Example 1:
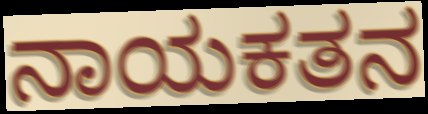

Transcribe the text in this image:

ನಾಯಕತನ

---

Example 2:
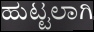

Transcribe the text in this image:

ಹುಟ್ಟಲಾಗಿ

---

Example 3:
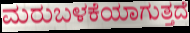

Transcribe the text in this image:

ಮರುಬಳಕೆಯಾಗುತ್ತದೆ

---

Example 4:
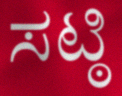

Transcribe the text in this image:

ಸಟ್ಠಿ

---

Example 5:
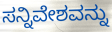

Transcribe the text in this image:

ಸನ್ನಿವೇಶವನ್ನು